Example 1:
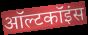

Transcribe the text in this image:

ऑल्टकॉइंस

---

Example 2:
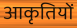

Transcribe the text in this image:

आकृतियों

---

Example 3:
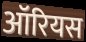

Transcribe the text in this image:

ऑरियस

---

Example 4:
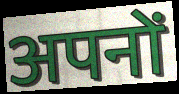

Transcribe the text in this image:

अपनों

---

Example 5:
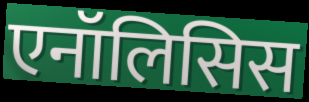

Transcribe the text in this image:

एनॉलिसिस